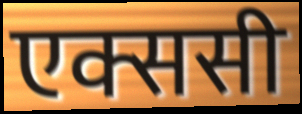
एक्ससी